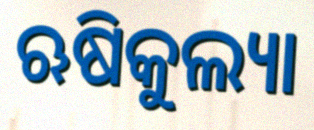
ଋଷିକୁଲ୍ୟା